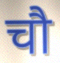
चौ